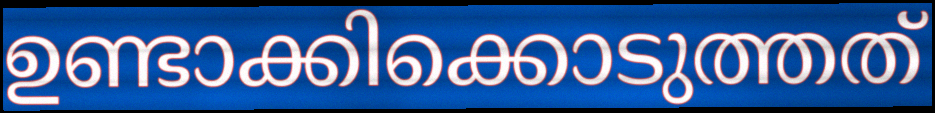
ഉണ്ടാക്കിക്കൊടുത്തത്